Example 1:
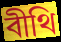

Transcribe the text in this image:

বীথি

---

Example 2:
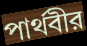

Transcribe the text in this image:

পার্থবীর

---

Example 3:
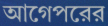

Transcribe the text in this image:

আগেপরের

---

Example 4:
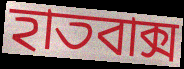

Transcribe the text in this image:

হাতবাক্স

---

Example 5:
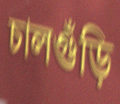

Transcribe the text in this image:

চালগুঁড়ি